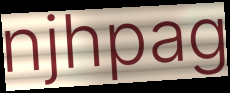
njhpag